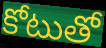
కోటుతో